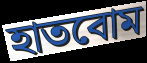
হাতবোম